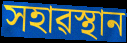
সহাৱস্থান